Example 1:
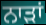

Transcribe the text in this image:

ਨਾੜਾਂ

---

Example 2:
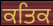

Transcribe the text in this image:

ਕਤਿਕ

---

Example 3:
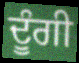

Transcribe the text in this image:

ਦੂੰਗੀ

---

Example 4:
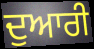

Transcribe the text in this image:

ਦੁਆਰੀ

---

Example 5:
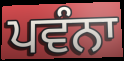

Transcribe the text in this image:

ਪਵੰਨਾ